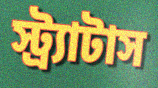
স্ট্র্যাটাস